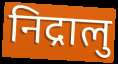
निद्रालु